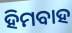
ହିମବାହ